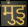
मुंडु